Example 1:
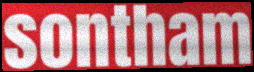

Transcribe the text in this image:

sontham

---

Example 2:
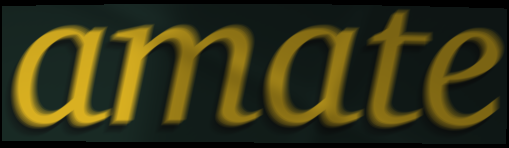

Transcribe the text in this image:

amate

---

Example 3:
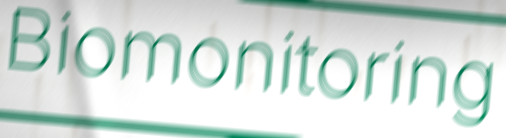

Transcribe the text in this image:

Biomonitoring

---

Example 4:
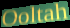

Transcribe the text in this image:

Ooltah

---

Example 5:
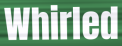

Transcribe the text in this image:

Whirled